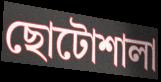
ছোটোশালা